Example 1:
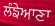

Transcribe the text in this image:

ਲੰਙੇਆਣਾ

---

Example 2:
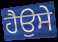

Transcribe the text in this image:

ਹੈਉਸੇ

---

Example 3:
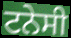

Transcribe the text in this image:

ਟਨੇਸੀ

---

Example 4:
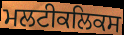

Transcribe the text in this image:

ਮਲਟੀਕਲਿਕਸ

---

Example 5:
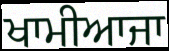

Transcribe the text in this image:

ਖਾਮੀਆਜਾ